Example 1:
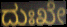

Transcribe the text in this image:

ದುಃಖೇ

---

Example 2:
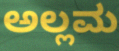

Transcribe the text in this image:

ಅಲ್ಲಮ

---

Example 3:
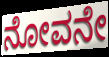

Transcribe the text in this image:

ನೋವನೇ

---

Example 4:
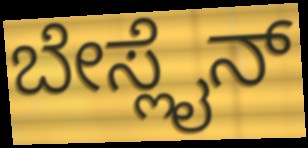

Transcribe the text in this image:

ಬೇಸ್ಲೈನ್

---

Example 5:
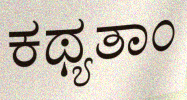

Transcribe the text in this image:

ಕಥ್ಯತಾಂ